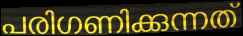
പരിഗണിക്കുന്നത്